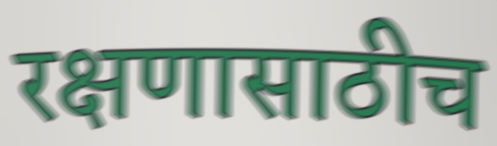
रक्षणासाठीच